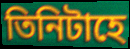
তিনিটাহে